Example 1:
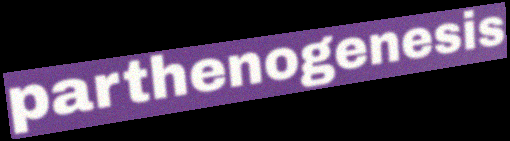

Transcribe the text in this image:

parthenogenesis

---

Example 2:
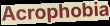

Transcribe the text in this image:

Acrophobia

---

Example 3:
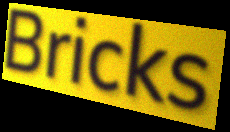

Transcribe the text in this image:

Bricks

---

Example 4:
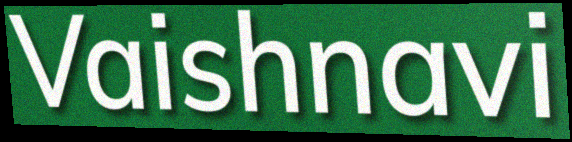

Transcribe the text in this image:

Vaishnavi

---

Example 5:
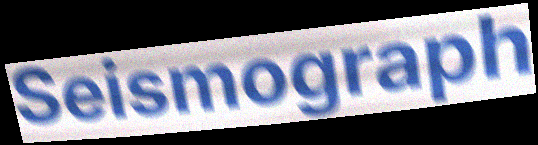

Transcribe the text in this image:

Seismograph